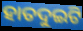
ହାତଦୁଇଟି